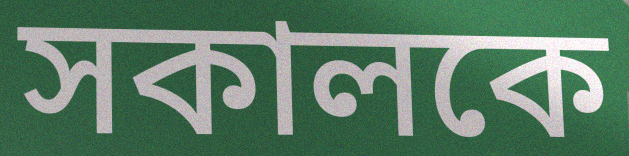
সকালকে